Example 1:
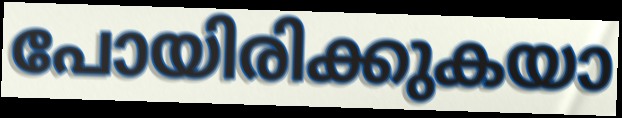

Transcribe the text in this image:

പോയിരിക്കുകയാ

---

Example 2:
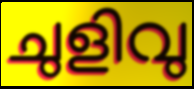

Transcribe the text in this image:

ചുളിവു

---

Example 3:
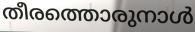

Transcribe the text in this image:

തീരത്തൊരുനാൾ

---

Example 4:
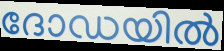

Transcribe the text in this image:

ദോഡയിൽ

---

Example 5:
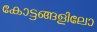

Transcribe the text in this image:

കോട്ടങ്ങളിലോ